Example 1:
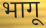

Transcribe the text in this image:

भागू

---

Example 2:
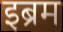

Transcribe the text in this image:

इब्रम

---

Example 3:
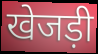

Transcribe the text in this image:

खेजड़ी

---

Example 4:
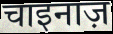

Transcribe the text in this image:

चाइनाज़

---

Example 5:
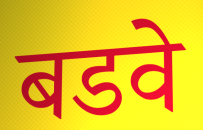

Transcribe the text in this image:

बडवे